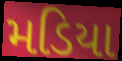
મડિયા